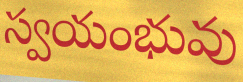
స్వయంభువు